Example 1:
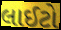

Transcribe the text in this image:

લાઈટો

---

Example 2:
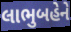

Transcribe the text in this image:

લાભુબહેને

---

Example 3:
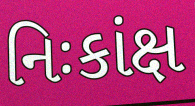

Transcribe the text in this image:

નિઃકાંક્ષ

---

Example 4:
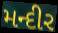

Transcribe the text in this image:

મન્દીર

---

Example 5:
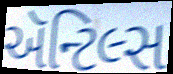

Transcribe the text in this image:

ઍન્ટિલ્સ